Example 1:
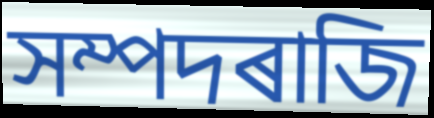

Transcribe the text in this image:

সম্পদৰাজি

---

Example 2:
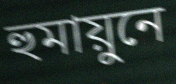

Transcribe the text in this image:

হুমায়ুনে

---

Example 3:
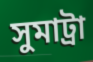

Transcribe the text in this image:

সুমাট্ৰা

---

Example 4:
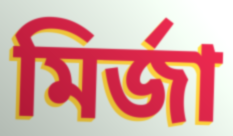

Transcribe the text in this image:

মিৰ্জা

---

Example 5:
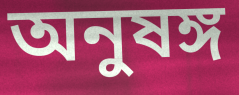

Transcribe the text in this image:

অনুষঙ্গ